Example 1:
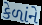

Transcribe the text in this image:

કેળાંને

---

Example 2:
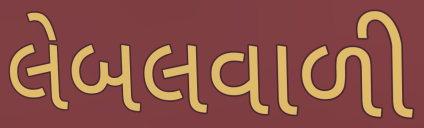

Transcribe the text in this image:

લેબલવાળી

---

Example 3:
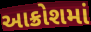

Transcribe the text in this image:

આક્રોશમાં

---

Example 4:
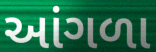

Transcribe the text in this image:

આંગળા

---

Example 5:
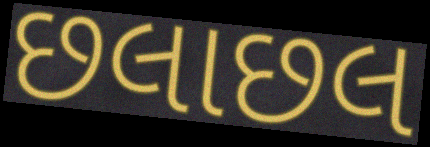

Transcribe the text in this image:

છલાછલ